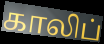
காலிப்